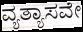
ವ್ಯತ್ಯಾಸವೇ